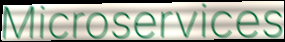
Microservices